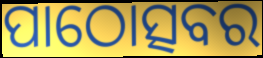
ପାଠୋତ୍ସବର